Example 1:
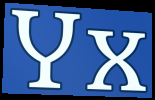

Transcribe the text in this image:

Yx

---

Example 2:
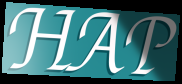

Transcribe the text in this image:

HAP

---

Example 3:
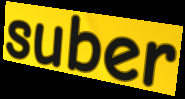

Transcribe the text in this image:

suber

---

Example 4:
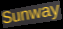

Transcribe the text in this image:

Sunway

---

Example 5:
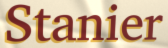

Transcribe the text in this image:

Stanier